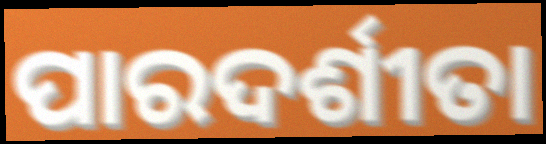
ପାରଦର୍ଶୀତା